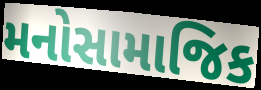
મનોસામાજિક